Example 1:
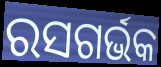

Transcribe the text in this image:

ରସଗର୍ଭକ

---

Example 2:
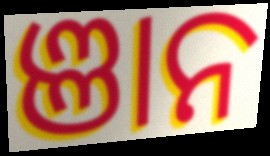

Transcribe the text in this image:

ଞାନ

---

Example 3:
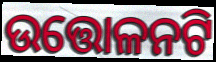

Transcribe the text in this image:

ଉତ୍ତୋଳନଟି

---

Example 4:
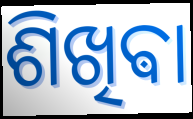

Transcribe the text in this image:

ଶିଖିଵା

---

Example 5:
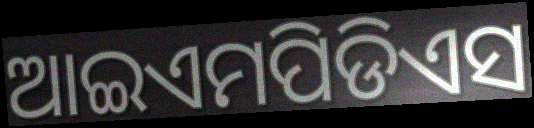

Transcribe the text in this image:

ଆଇଏମପିଡିଏସ